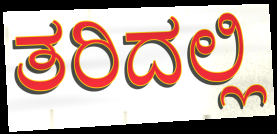
ತರಿದಲ್ಲಿ